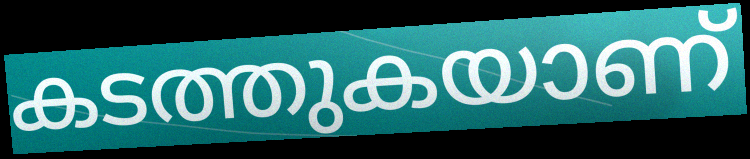
കടത്തുകയാണ്